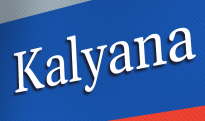
Kalyana